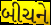
બીચને